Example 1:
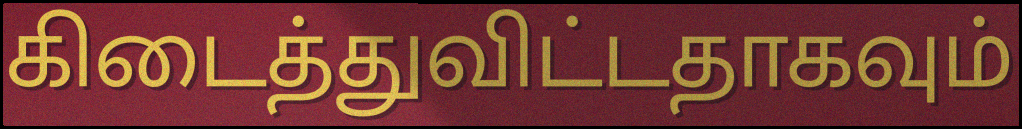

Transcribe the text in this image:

கிடைத்துவிட்டதாகவும்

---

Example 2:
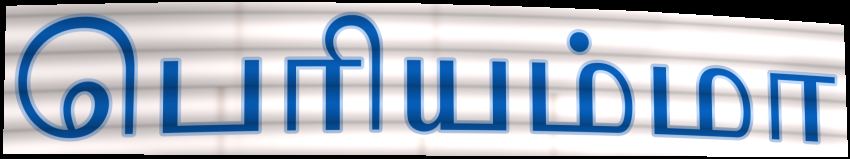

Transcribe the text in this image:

பெரியம்மா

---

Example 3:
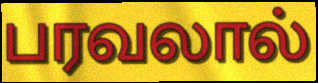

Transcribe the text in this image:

பரவலால்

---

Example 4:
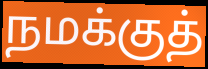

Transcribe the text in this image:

நமக்குத்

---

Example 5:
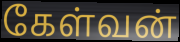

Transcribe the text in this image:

கேள்வன்